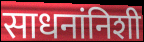
साधनांनिशी